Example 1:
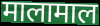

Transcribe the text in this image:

मालामाल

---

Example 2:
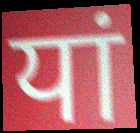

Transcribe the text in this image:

यां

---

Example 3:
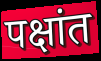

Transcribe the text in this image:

पक्षांत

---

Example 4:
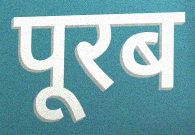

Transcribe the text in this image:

पूरब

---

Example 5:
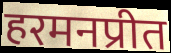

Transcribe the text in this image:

हरमनप्रीत